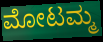
ಮೋಟಮ್ಮ